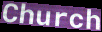
Church